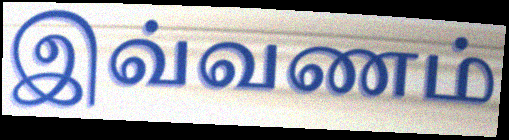
இவ்வணம்